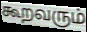
கூறவரும்